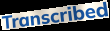
Transcribed